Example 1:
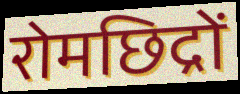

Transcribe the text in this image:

रोमछिद्रों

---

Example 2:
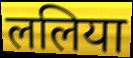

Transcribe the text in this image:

ललिया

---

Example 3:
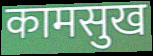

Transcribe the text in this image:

कामसुख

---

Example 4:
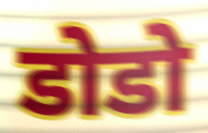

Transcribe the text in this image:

डोडो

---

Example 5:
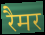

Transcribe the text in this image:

रैमर